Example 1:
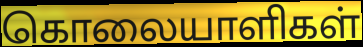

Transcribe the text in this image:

கொலையாளிகள்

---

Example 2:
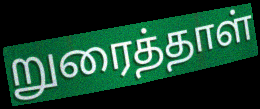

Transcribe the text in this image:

றுரைத்தாள்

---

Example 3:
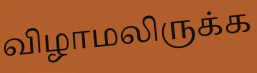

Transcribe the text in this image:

விழாமலிருக்க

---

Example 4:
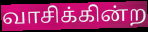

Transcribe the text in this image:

வாசிக்கின்ற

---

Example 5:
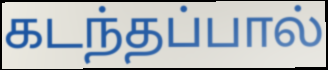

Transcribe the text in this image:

கடந்தப்பால்